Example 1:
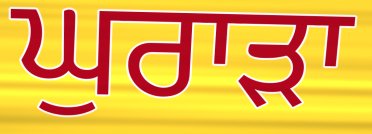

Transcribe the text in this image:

ਘੁਰਾੜਾ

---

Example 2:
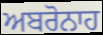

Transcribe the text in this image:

ਅਬਰੋਨਾਹ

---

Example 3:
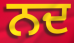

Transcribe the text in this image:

ਨਦ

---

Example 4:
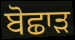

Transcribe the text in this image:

ਬੋਛਾੜ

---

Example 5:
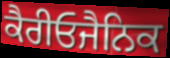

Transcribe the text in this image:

ਕੈਰੀਓਜੈਨਿਕ